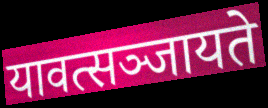
यावत्सञ्जायते